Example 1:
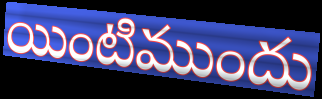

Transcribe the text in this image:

యింటిముందు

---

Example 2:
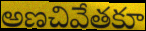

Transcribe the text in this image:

అణచివేతకూ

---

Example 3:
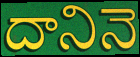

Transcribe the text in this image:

దానినె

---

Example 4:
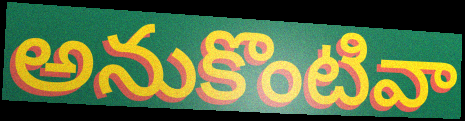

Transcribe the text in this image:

అనుకొంటివా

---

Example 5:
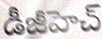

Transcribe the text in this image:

డీజీహెచ్